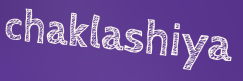
chaklashiya